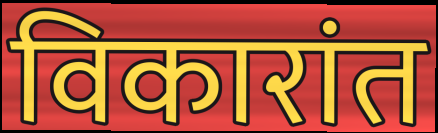
विकारांत